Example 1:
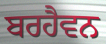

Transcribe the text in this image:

ਬਰਹੈਵਨ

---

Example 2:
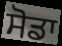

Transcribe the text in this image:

ਸੋਡਾ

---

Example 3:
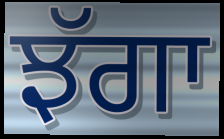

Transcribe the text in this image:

ਝੱਗਾ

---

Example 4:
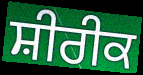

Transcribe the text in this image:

ਸ਼ੀਰੀਕ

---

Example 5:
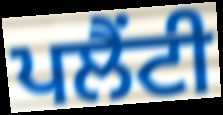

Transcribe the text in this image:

ਪਲੈਂਟੀ